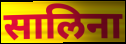
सालिना